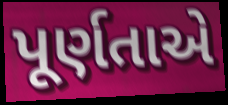
પૂર્ણતાએ